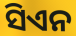
ସିଏନ